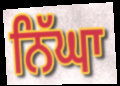
ਨਿੱਘਾ